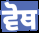
ਵੋਥ